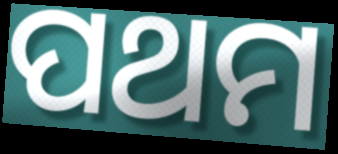
ପଥମ